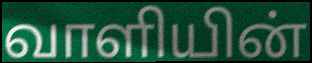
வாளியின்